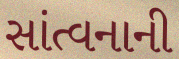
સાંત્વનાની